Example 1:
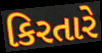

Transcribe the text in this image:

કિરતારે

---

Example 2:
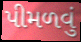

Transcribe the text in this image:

પીમળવું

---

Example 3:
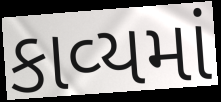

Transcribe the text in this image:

કાવ્‍યમાં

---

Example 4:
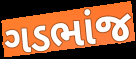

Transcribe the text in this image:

ગડભાંજ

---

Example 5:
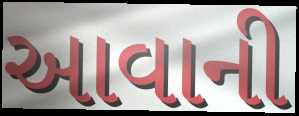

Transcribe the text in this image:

આવાની